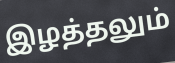
இழத்தலும்